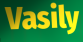
Vasily